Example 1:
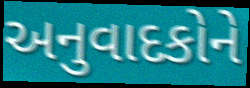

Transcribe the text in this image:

અનુવાદકોને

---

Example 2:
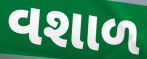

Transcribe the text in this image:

વશાળ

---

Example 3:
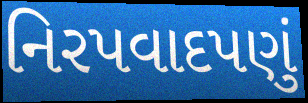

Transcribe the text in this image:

નિરપવાદપણું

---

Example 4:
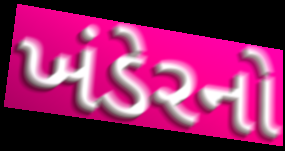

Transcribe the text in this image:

ખંડેરનો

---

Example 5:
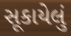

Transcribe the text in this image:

સૂકાયેલું